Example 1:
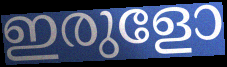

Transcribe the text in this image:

ഇരുളോ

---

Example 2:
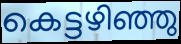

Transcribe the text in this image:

കെട്ടഴിഞ്ഞു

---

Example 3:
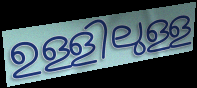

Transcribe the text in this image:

ഉള്ളിലുള്ള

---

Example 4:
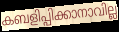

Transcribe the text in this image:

കബളിപ്പിക്കാനാവില്ല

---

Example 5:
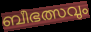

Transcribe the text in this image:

ബീഭത്സവും